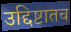
उद्दिष्टातच